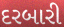
દરબારી